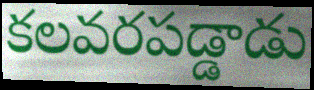
కలవరపడ్డాడు